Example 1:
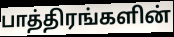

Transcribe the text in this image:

பாத்திரங்களின்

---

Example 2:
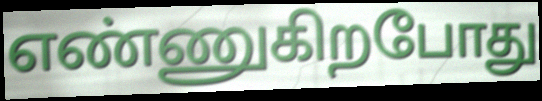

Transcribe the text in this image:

எண்ணுகிறபோது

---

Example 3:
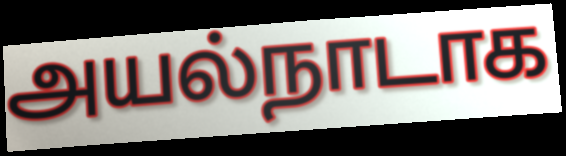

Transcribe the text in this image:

அயல்நாடாக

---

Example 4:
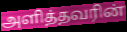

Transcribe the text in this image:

அளித்தவரின்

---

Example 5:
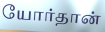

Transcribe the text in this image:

யோர்தான்